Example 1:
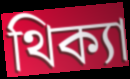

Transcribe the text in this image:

থিক্যা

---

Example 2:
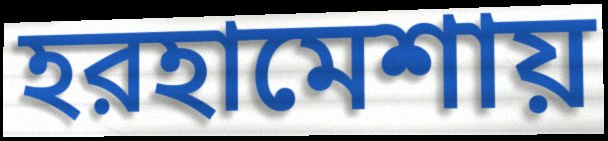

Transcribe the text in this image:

হরহামেশায়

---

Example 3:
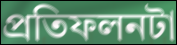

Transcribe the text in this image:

প্রতিফলনটা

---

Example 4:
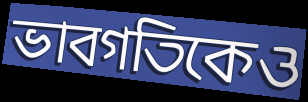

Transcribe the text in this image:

ভাবগতিকেও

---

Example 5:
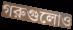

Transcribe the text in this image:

গরুগুলোও